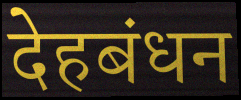
देहबंधन